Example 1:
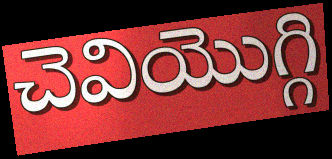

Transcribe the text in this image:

చెవియొగ్గి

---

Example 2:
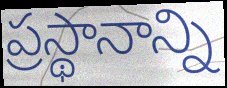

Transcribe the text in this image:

ప్రస్థానాన్ని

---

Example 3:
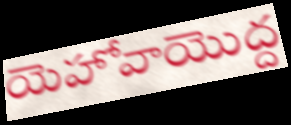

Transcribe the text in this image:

యెహోవాయొద్ద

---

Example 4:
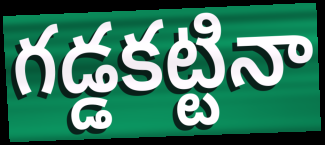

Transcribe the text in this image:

గడ్డకట్టినా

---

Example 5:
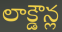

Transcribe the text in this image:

లాక్డౌన్ల